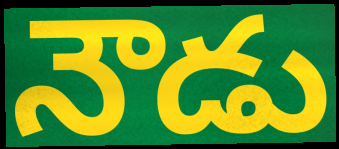
నౌడు